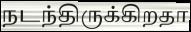
நடந்திருக்கிறதா